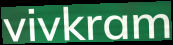
vivkram